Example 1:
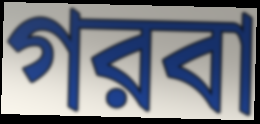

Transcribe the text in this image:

গরবা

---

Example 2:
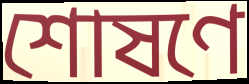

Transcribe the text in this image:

শোষণে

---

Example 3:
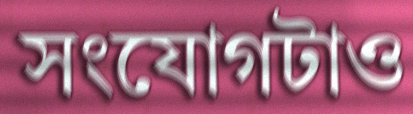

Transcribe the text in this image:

সংযোগটাও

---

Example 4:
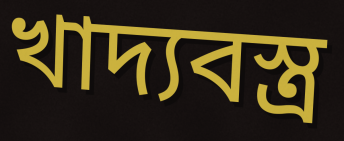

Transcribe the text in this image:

খাদ্যবস্ত্র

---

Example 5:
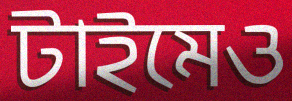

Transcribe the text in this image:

টাইমেও